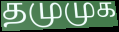
தமுமுக